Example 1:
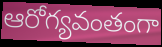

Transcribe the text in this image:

ఆరోగ్యవంతంగా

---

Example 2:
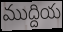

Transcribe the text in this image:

ముద్దియ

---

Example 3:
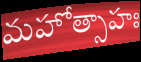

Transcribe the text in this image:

మహోత్సాహః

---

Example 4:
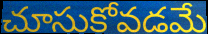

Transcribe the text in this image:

చూసుకోవడమే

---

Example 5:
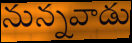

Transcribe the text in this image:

నున్నవాడు